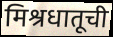
मिश्रधातूची